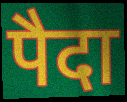
पैदा